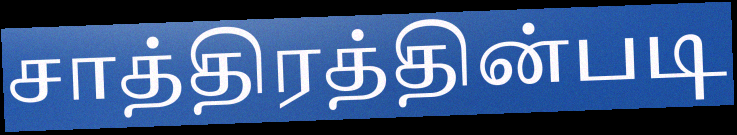
சாத்திரத்தின்படி